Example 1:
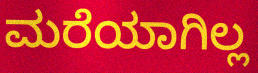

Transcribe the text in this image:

ಮರೆಯಾಗಿಲ್ಲ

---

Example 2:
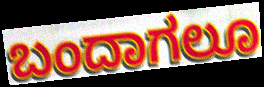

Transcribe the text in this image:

ಬಂದಾಗಲೂ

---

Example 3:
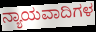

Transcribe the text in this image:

ನ್ಯಾಯವಾದಿಗಳ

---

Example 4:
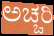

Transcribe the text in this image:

ಅಚ್ಚರಿ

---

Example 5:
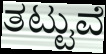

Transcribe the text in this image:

ತಟ್ಟುವೆ